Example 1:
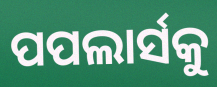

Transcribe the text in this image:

ପପଲାର୍ସକୁ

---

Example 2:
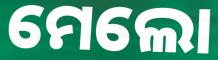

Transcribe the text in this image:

ମେଲୋ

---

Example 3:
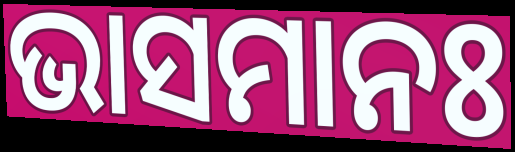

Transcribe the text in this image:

ଭାସମାନଃ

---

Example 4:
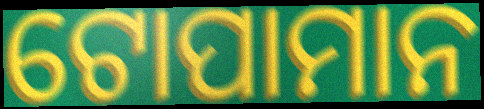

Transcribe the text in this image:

ଟୋପାମାନ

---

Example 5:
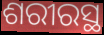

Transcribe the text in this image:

ଶରୀରସ୍ଥ